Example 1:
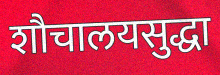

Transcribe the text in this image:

शौचालयसुद्धा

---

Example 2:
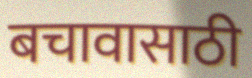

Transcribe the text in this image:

बचावासाठी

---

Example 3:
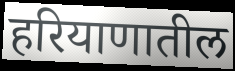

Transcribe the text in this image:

हरियाणातील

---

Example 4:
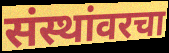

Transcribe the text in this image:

संस्थांवरचा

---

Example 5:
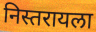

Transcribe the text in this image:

निस्तरायला